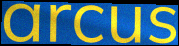
arcus